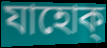
যাহোক্